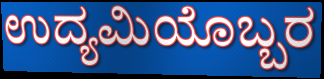
ಉದ್ಯಮಿಯೊಬ್ಬರ